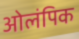
ओलंपिक